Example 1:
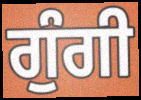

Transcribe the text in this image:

ਗੁੰਗੀ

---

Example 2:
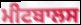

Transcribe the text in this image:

ਮੀਟਬਾਲਸ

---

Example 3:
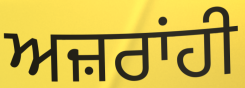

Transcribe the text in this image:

ਅਜ਼ਰਾਂਹੀ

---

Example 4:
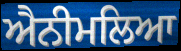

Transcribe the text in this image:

ਐਨੀਮਲਿਆ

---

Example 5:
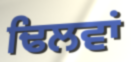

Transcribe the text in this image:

ਢਿਲਵਾਂ